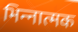
भिन्नात्मक